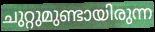
ചുറ്റുമുണ്ടായിരുന്ന